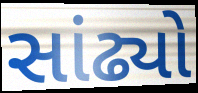
સાંઢ્યો